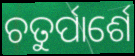
ଚତୁର୍ପାର୍ଶେ